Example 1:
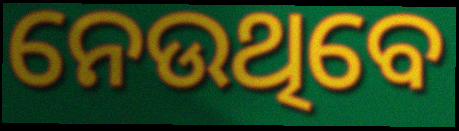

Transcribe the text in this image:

ନେଉଥିବେ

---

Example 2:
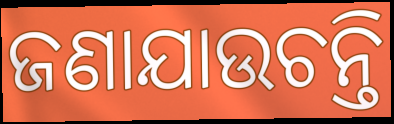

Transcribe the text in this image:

ଜଣାଯାଉଚନ୍ତି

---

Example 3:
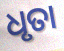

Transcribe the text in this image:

ଧୃତା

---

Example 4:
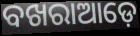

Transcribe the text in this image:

ବଖରାଆଡ଼େ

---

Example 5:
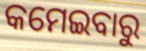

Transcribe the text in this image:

କମେଇବାରୁ